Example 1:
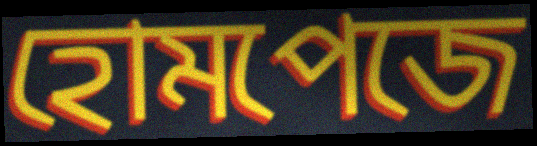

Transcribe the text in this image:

হোমপেজে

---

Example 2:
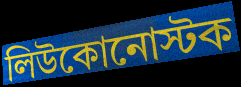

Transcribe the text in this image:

লিউকোনোস্টক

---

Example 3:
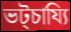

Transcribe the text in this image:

ভট্চায্যি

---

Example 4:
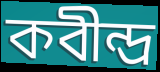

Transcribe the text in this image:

কবীন্দ্র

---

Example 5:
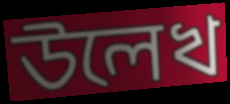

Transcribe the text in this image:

উলেখ